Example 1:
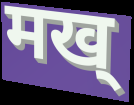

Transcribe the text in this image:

मख्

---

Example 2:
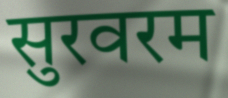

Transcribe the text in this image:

सुरवरम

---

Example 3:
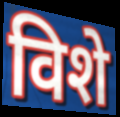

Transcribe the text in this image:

विशे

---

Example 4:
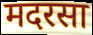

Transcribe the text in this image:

मदरसा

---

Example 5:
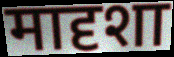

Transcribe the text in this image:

मादृशा